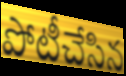
పోటీచేసిన